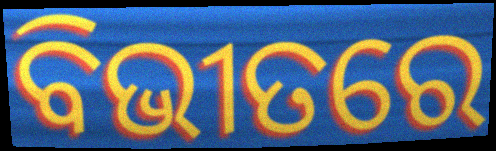
ବିଭୀତରେ